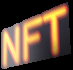
NFT